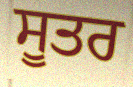
ਸੂਤਰ